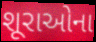
શૂરાઓના